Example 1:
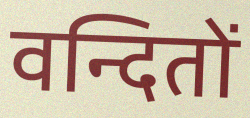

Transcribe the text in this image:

वन्दितों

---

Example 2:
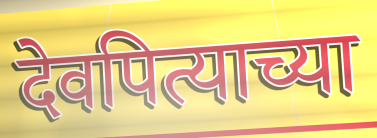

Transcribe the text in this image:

देवपित्याच्या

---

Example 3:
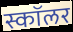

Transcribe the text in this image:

स्कॉलर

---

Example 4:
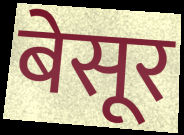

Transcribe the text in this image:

बेसूर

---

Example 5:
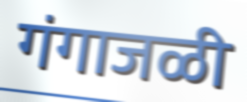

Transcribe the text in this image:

गंगाजळी